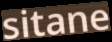
sitane